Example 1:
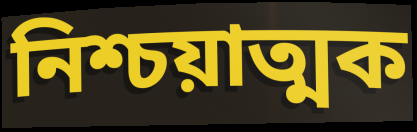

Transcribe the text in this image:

নিশ্চয়াত্মক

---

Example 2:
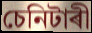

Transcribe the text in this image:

চেনিটাৰী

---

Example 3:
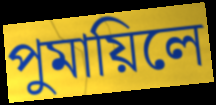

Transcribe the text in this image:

পুমায়িলে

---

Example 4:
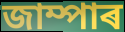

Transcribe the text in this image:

জাম্পাৰ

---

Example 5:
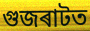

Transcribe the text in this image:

গুজৰাটত